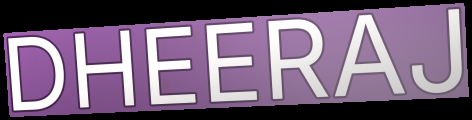
DHEERAJ